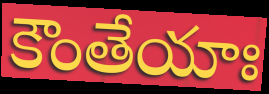
కౌంతేయాః